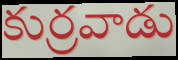
కుర్రవాడు